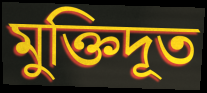
মুক্তিদূত